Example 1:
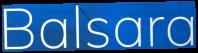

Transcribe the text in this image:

Balsara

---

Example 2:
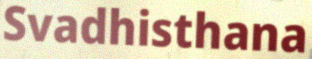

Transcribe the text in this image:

Svadhisthana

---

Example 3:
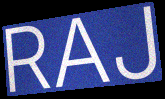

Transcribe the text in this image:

RAJ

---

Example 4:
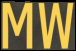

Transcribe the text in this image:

MW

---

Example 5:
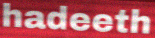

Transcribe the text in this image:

hadeeth